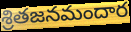
శ్రితజనమందార